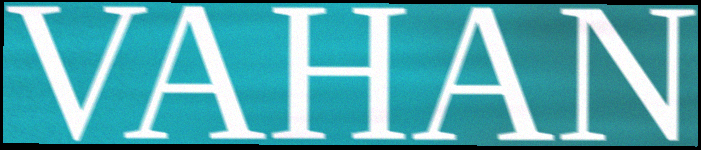
VAHAN